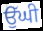
ਉੱਘੀ